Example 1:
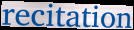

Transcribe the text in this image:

recitation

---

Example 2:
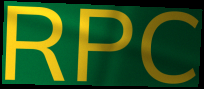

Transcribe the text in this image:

RPC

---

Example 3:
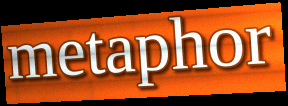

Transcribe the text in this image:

metaphor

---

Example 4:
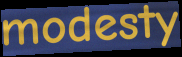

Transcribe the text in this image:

modesty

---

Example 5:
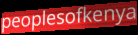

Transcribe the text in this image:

peoplesofkenya